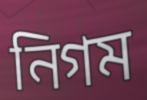
নিগম